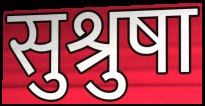
सुश्रुषा